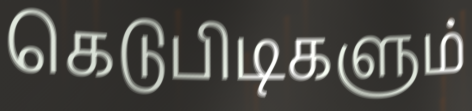
கெடுபிடிகளும்